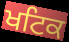
ਖਟਿਕ